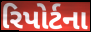
રિપોર્ટના